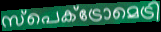
സ്പെക്ട്രോമെട്രി